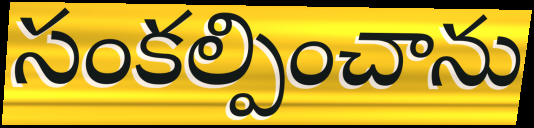
సంకల్పించాను